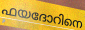
ഫയദോറിനെ